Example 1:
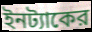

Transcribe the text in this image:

ইনট্যাকের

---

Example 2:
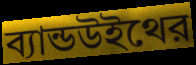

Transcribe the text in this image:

ব্যান্ডউইথের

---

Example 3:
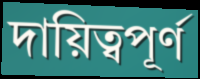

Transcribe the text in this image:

দায়িত্বপূর্ণ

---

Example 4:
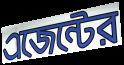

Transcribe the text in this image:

এজেন্টের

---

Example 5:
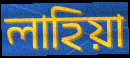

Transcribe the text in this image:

লাহিয়া